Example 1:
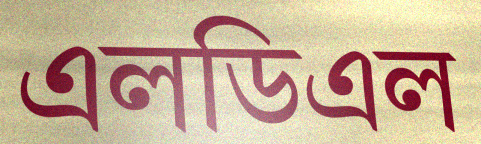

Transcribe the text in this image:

এলডিএল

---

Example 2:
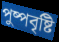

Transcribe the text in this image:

পুষ্পবৃষ্টি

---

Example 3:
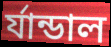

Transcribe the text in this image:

র্যান্ডাল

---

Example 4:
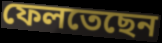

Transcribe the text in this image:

ফেলতেছেন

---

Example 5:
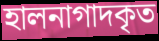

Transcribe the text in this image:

হালনাগাদকৃত